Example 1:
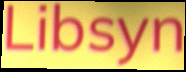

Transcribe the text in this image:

Libsyn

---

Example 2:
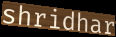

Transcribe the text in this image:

shridhar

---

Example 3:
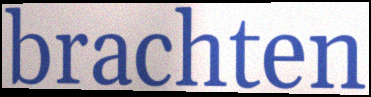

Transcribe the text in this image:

brachten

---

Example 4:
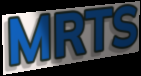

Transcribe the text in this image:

MRTS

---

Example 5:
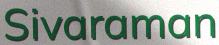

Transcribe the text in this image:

Sivaraman